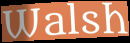
Walsh